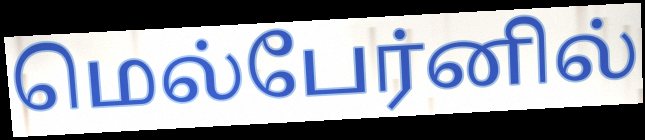
மெல்பேர்னில்